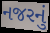
નજરનું